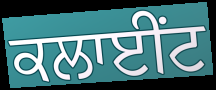
ਕਲਾਈਂਟ